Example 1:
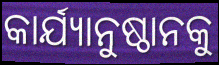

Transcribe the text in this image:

କାର୍ଯ୍ୟାନୁଷ୍ଠାନକୁ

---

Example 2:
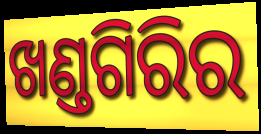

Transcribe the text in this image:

ଖଣ୍ଡଗିରିର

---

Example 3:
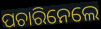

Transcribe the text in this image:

ପଚାରିନେଲେ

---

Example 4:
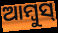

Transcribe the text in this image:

ଆମ୍ବୁସ୍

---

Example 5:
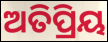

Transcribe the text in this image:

ଅତିପ୍ରିୟ